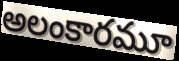
అలంకారమూ